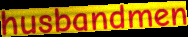
husbandmen